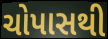
ચોપાસથી